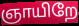
ஞாயிறே